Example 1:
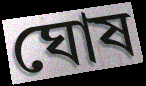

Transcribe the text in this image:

ঘোষ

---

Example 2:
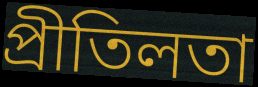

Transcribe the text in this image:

প্ৰীতিলতা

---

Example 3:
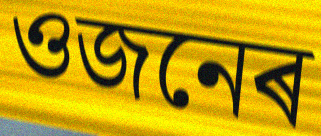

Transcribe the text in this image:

ওজনেৰ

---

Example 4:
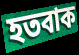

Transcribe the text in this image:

হতবাক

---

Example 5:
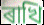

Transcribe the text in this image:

ৰাখি